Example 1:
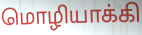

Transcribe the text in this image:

மொழியாக்கி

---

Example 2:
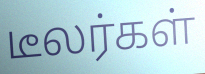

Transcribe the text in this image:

டீலர்கள்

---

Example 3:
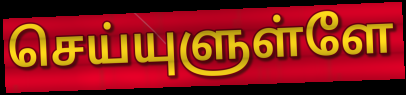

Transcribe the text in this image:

செய்யுளுள்ளே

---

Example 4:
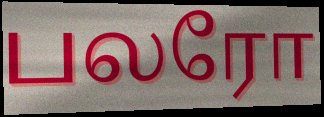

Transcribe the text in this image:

பலரோ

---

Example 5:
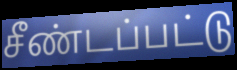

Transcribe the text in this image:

சீண்டப்பட்டு